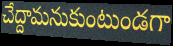
చేద్దామనుకుంటుండగా